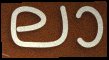
ലാ